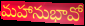
మహానుభావో